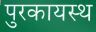
पुरकायस्थ